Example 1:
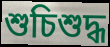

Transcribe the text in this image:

শুচিশুদ্ধ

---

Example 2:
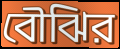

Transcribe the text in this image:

বৌঝির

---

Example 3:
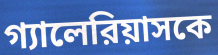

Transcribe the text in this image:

গ্যালেরিয়াসকে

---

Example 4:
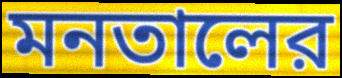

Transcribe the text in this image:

মনতালের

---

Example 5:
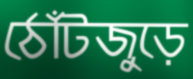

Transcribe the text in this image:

ঠোঁটজুড়ে